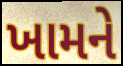
ખામને